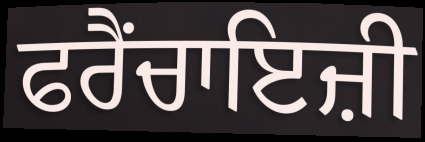
ਫਰੈਂਚਾਇਜ਼ੀ